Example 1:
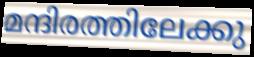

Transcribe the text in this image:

മന്ദിരത്തിലേക്കു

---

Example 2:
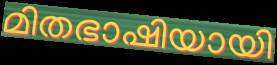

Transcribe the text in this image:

മിതഭാഷിയായി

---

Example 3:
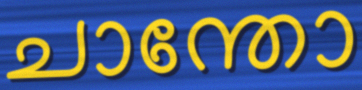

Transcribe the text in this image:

ചാന്തോ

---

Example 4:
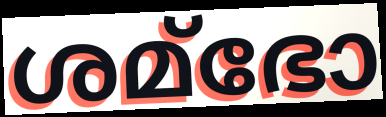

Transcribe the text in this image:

ശമ്ഭോ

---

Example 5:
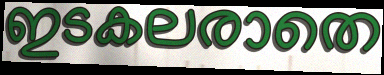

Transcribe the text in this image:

ഇടകലരാതെ